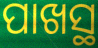
ପାଖସ୍ଥ